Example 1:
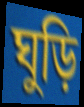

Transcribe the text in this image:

ঘুড়ি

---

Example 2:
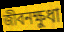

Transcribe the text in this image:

জীবনক্ষুধা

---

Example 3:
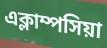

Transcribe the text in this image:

এক্লাম্পসিয়া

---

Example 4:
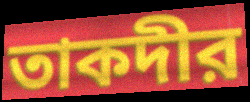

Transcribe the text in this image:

তাকদীর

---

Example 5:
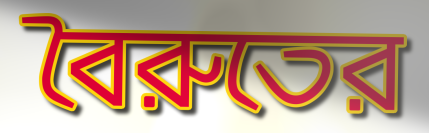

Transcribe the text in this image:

বৈরুতের